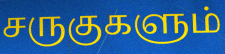
சருகுகளும்